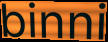
binni